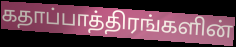
கதாப்பாத்திரங்களின்